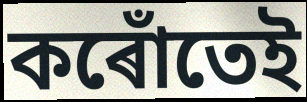
কৰোঁতেই